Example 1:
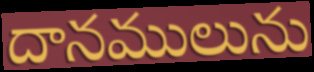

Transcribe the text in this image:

దానములును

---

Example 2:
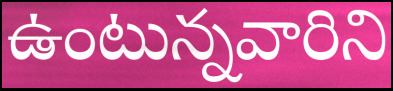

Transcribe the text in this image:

ఉంటున్నవారిని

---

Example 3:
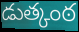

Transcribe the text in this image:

డుత్కంఠ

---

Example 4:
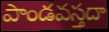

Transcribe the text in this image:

పాండవస్తదా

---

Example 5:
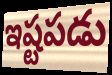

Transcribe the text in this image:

ఇష్టపడు